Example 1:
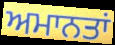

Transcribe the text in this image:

ਅਮਾਨਤਾਂ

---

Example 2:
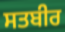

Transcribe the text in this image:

ਸਤਬੀਰ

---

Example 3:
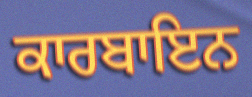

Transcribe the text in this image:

ਕਾਰਬਾਇਨ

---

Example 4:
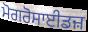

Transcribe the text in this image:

ਮੋਗਰੋਸਾਈਡਜ਼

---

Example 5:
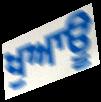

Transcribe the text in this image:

ਖੁਆਊ